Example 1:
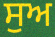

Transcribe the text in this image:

ਸੁਅ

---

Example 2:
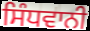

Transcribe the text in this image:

ਸਿੰਧਵਾਨੀ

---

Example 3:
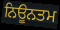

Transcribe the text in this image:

ਨਿਊਨਤਮ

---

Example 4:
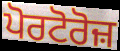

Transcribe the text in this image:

ਪੋਰਟੋਰੋਜ਼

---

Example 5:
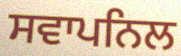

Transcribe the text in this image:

ਸਵਾਪਨਿਲ